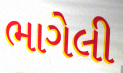
ભાગેલી